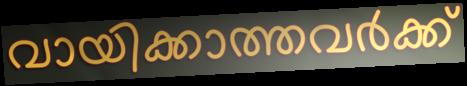
വായിക്കാത്തവർക്ക്